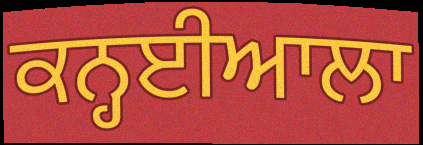
ਕਨ੍ਹਈਆਲਾ